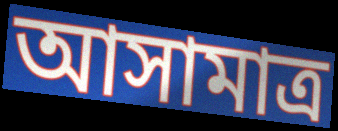
আসামাত্র